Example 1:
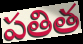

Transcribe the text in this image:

పతిత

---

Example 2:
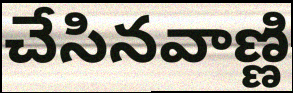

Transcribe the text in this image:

చేసినవాణ్ణి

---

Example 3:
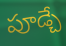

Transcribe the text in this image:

పూడ్చే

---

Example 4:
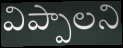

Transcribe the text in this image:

విప్పాలని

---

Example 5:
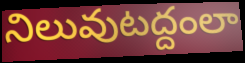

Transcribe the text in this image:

నిలువుటద్దంలా